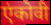
एंकोवी